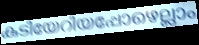
കുടിയേറിയപ്പോഴെല്ലാം